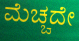
ಮೆಚ್ಚದೇ